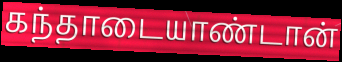
கந்தாடையாண்டான்